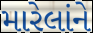
મારેલાંને